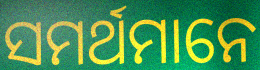
ସମର୍ଥମାନେ